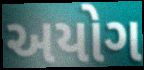
અયોગ